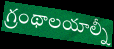
గ్రంథాలయాల్నీ